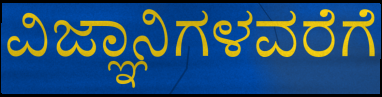
ವಿಜ್ಞಾನಿಗಳವರೆಗೆ